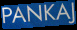
PANKAJ